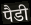
पैडी